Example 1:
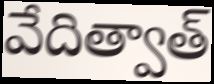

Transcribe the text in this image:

వేదిత్వాత్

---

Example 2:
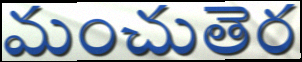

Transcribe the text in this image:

మంచుతెర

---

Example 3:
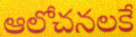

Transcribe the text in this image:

ఆలోచనలకే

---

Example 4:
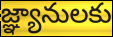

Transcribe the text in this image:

జ్ఞ్యానులకు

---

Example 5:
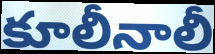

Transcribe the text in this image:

కూలీనాలీ